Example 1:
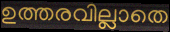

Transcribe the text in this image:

ഉത്തരവില്ലാതെ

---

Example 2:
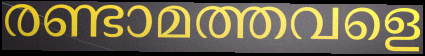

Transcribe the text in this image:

രണ്ടാമത്തവളെ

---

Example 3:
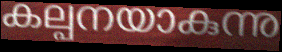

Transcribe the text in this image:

കല്പനയാകുന്നു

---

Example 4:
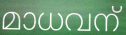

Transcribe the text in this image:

മാധവന്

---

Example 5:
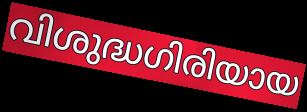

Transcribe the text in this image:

വിശുദ്ധഗിരിയായ